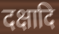
दक्षादि